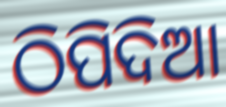
ଠିପିଦିଆ